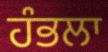
ਹੰਭਲਾ